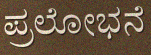
ಪ್ರಲೋಭನೆ